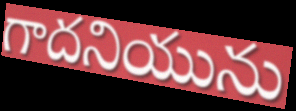
గాదనియును